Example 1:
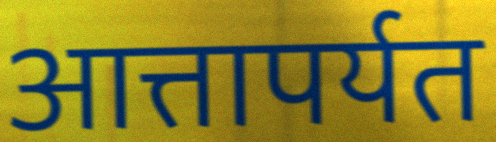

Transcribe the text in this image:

आत्तापर्यत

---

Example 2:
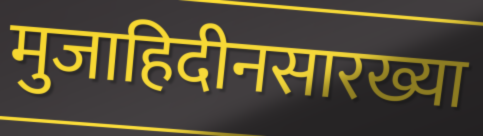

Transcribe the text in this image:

मुजाहिदीनसारख्या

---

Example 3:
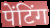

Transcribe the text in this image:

पेंटिंग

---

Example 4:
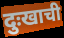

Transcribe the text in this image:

दुःखाची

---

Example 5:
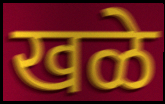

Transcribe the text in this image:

खळे